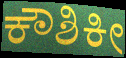
ಕೌಶಿಕೀ